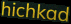
hichkad